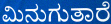
ಮಿನುಗುತಾರೆ